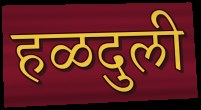
हळदुली